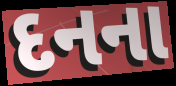
દનના